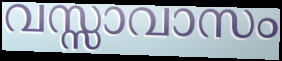
വസ്സാവാസം